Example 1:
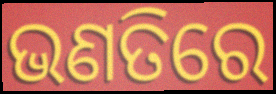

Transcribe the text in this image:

ଭଣତିରେ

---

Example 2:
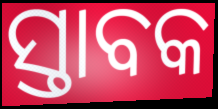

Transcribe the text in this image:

ସ୍ତାବକ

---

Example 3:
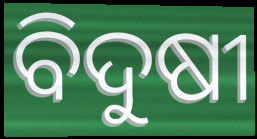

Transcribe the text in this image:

ବିଦୁଷୀ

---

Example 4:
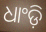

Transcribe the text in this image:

ଧାଂଡ଼ି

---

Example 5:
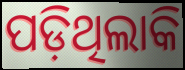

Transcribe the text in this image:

ପଡ଼ିଥିଲାକି